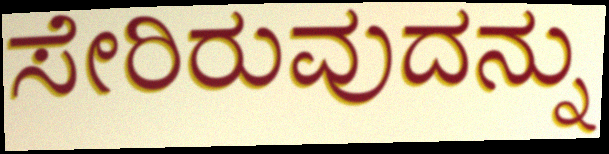
ಸೇರಿರುವುದನ್ನು